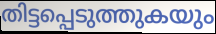
തിട്ടപ്പെടുത്തുകയും